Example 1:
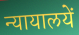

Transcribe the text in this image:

न्यायालयें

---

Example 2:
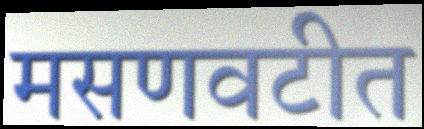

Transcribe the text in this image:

मसणवटीत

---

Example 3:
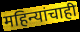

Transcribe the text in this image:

महिन्यांचाही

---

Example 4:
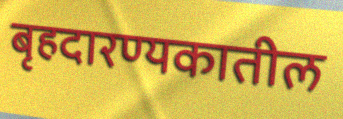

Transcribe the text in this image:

बृहदारण्यकातील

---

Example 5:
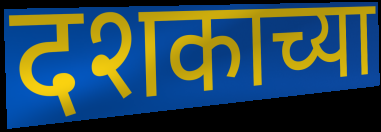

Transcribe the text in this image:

दशकाच्या